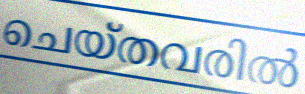
ചെയ്തവരിൽ